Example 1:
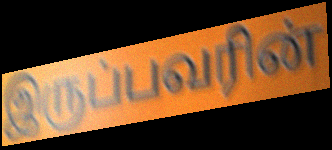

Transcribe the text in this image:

இருப்பவரின்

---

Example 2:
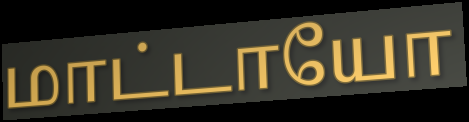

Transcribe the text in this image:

மாட்டாயோ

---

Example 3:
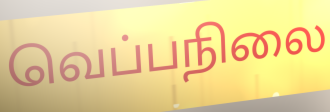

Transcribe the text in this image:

வெப்பநிலை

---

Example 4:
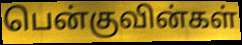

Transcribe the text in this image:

பென்குவின்கள்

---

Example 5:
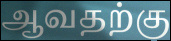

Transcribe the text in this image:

ஆவதற்கு